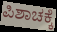
ಪಿಶಾಚಕ್ಕೆ